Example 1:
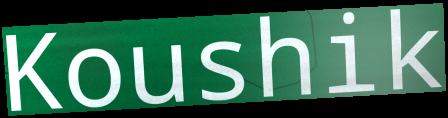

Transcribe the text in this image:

Koushik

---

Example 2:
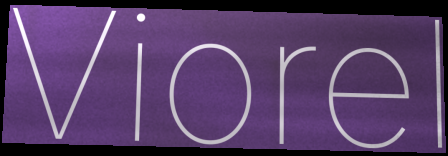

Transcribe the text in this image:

Viorel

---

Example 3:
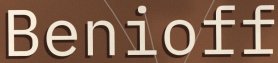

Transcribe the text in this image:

Benioff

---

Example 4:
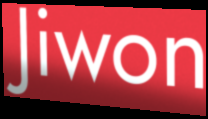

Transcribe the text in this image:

Jiwon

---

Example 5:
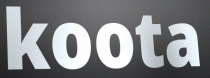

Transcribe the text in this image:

koota